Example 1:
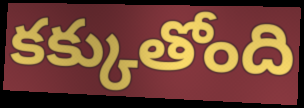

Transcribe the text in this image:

కక్కుతోంది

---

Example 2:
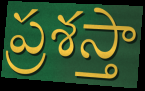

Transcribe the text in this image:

ప్రశస్తా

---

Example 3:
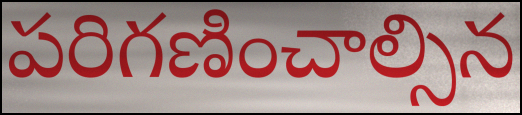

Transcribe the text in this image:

పరిగణించాల్సిన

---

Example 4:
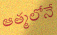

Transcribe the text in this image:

ఆత్మలోనే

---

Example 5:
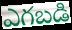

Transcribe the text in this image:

ఎగబడి